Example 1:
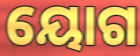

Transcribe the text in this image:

ୟୋଗ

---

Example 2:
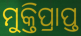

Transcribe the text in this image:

ମୁକ୍ତିପ୍ରାପ୍ତ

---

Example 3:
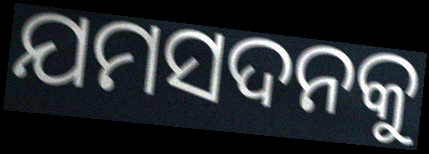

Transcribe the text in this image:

ଯମସଦନକୁ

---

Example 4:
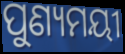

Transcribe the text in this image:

ପୁଣ୍ୟମୟୀ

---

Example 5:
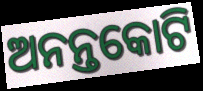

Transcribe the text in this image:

ଅନନ୍ତକୋଟି